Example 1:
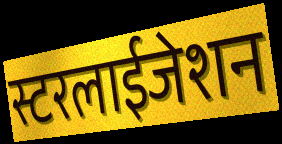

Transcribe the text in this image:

स्टरलाईजेशन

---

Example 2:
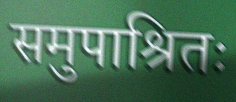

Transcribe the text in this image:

समुपाश्रितः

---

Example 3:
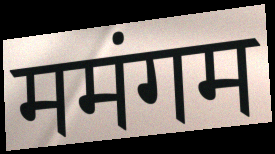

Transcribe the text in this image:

ममंगम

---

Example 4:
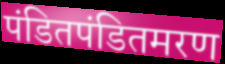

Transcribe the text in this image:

पंडितपंडितमरण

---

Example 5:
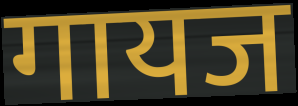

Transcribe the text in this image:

गायज